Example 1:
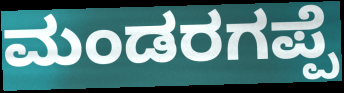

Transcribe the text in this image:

ಮಂಡರಗಪ್ಪೆ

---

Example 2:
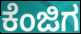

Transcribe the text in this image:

ಕೆಂಜಿಗ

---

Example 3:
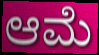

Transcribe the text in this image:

ಆಮೆ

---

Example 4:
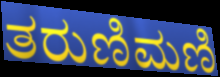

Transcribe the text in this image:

ತರುಣಿಮಣಿ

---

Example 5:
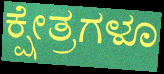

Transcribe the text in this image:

ಕ್ಷೇತ್ರಗಳೂ